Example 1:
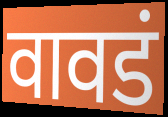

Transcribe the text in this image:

वावडं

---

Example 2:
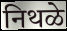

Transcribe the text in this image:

निथळे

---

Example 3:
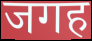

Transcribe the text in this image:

जगह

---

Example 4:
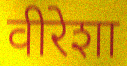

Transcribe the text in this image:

वीरेशा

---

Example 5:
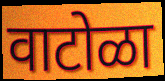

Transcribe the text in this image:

वाटोळा